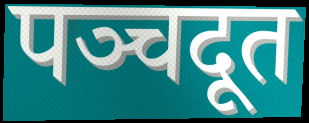
पञ्चदूत